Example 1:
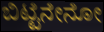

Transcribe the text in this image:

ಬಿಟ್ಟೆನೇನೋ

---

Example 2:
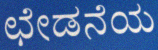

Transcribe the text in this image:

ಛೇಡನೆಯ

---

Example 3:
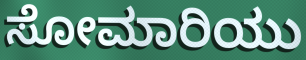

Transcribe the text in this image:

ಸೋಮಾರಿಯು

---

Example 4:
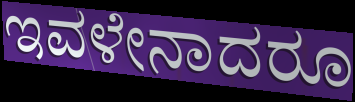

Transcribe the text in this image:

ಇವಳೇನಾದರೂ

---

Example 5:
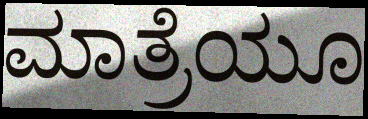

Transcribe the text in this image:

ಮಾತ್ರೆಯೂ